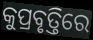
କୁପ୍ରବୃତ୍ତିରେ